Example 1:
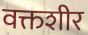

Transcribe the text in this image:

वक्तशीर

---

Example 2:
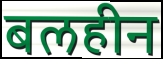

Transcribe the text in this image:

बलहीन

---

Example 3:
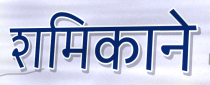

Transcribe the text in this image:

शमिकाने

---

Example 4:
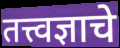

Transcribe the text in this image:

तत्त्वज्ञाचे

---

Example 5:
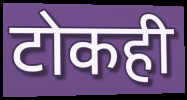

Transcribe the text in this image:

टोकही